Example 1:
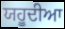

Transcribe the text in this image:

ਯਹੂਦੀਆ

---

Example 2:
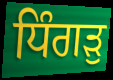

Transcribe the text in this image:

ਧਿੰਗੜੁ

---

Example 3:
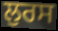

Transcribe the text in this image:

ਲੁਰਸ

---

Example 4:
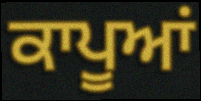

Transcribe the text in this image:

ਕਾਪੂਆਂ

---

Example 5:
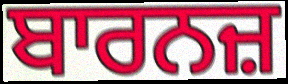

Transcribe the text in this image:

ਬਾਰਨਜ਼